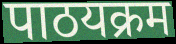
पाठयक्रम